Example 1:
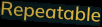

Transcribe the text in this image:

Repeatable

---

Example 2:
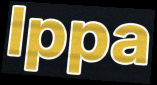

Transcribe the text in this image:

Ippa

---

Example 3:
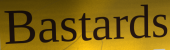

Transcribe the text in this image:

Bastards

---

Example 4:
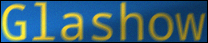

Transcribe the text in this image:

Glashow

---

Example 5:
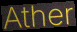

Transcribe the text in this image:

Ather